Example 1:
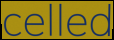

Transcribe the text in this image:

celled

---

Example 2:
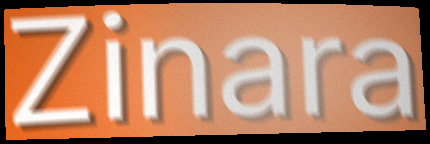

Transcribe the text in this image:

Zinara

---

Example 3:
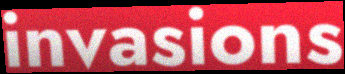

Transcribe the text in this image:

invasions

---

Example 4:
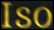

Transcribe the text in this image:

Iso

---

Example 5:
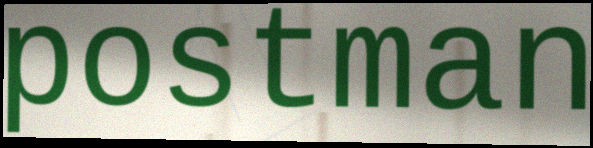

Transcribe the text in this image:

postman